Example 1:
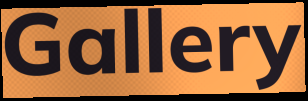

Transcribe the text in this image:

Gallery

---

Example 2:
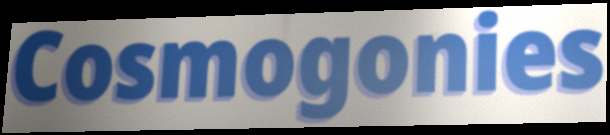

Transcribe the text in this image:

Cosmogonies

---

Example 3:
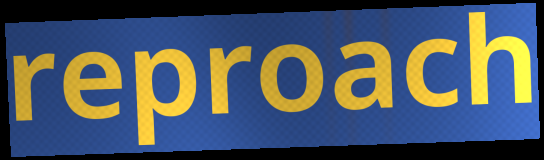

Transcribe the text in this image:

reproach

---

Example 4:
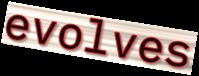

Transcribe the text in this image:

evolves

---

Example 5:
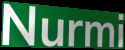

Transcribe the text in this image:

Nurmi